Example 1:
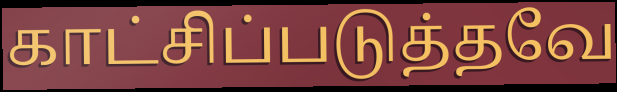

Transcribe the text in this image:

காட்சிப்படுத்தவே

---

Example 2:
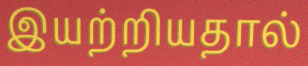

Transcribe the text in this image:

இயற்றியதால்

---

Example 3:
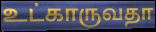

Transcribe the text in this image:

உட்காருவதா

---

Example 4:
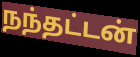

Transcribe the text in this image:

நந்தட்டன்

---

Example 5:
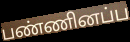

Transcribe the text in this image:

பண்ணினப்ப